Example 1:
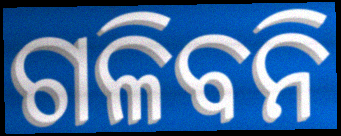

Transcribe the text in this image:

ଗଳିବନି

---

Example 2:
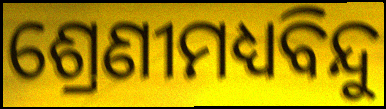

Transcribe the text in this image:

ଶ୍ରେଣୀମଧ୍ୟବିନ୍ଦୁ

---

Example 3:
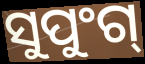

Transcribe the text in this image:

ସୁପୁଂଗ୍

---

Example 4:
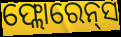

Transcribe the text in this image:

ଫ୍ଲୋରେନ୍‌ସ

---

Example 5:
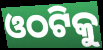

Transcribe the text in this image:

ଓଠଟିକୁ